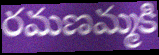
రమణమ్మకి